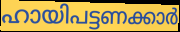
ഹായിപട്ടണക്കാർ